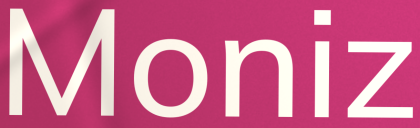
Moniz